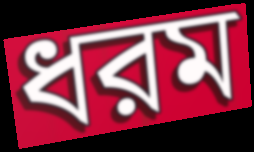
ধরম